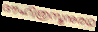
ദൗഹിത്രസൂനുരഥ